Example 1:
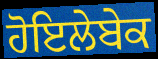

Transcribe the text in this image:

ਹੋਇਲੇਬੇਕ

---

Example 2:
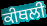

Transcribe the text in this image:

ਕੀਥਲੀ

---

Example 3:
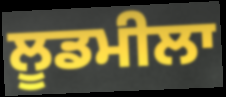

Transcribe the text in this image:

ਲੂਡਮੀਲਾ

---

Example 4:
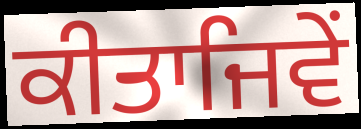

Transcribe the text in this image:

ਕੀਤਾਜਿਵੇਂ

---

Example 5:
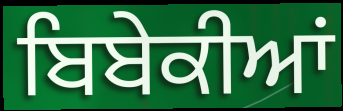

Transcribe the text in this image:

ਬਿਬੇਕੀਆਂ